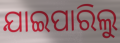
ଯାଇପାରିଲୁ